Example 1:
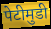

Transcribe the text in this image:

पेटीमुडी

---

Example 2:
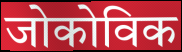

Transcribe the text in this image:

जोकोविक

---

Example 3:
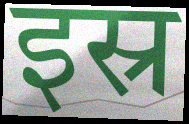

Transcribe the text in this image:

इस्र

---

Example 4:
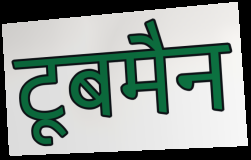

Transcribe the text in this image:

टूबमैन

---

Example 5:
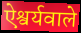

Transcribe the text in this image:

ऐश्वर्यवाले